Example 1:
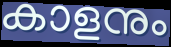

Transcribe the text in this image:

കാളനും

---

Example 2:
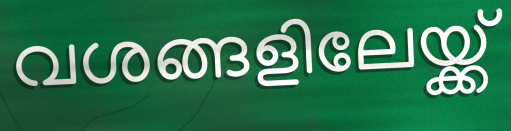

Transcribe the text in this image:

വശങ്ങളിലേയ്ക്ക്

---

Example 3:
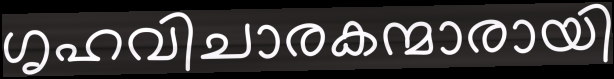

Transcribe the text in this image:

ഗൃഹവിചാരകന്മാരായി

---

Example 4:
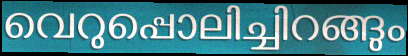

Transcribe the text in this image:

വെറുപ്പൊലിച്ചിറങ്ങും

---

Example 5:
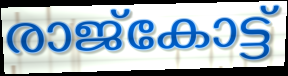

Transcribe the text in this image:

രാജ്കോട്ട്